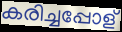
കരിച്ചപ്പോള്